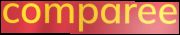
comparee